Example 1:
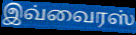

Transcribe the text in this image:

இவ்வைரஸ்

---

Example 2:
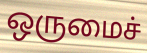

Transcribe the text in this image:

ஒருமைச்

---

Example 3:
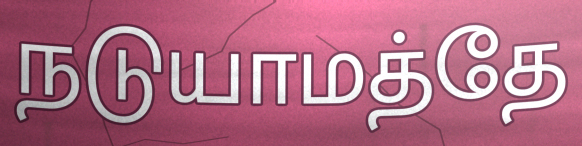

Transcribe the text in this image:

நடுயாமத்தே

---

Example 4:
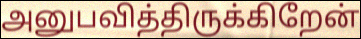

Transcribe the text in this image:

அனுபவித்திருக்கிறேன்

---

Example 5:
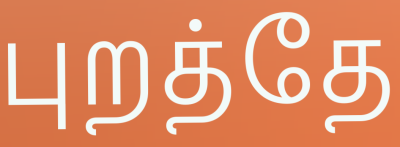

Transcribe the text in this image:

புறத்தே